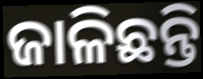
ଜାଳିଛନ୍ତି